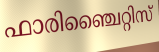
ഫാരിഞ്ചൈറ്റിസ്